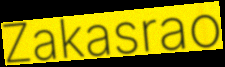
Zakasrao